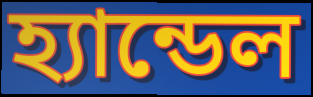
হ্যান্ডেল